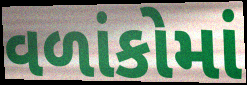
વળાંકોમાં